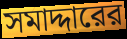
সমাদ্দারের